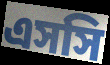
এসসি